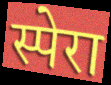
स्पेरा